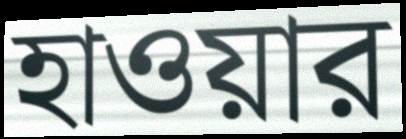
হাওয়ার